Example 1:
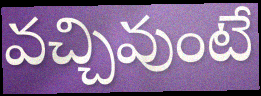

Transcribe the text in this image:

వచ్చివుంటే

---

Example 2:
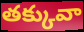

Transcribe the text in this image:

తక్కువా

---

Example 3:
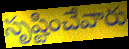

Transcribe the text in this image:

సృష్టించేవారు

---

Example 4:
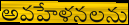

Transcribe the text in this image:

అవహేళనలను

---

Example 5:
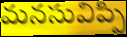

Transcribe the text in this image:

మనసువిప్పి